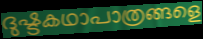
ദുഷ്ടകഥാപാത്രങ്ങളെ